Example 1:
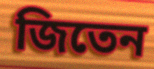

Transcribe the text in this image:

জিতেন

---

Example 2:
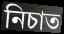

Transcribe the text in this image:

নিচাত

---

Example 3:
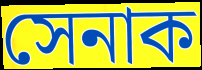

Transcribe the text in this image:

সেনাক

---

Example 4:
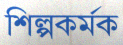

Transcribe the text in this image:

শিল্পকৰ্মক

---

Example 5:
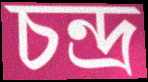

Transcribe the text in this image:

চন্দ্ৰ